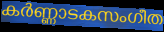
കർണ്ണാടകസംഗീത